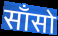
साँसो